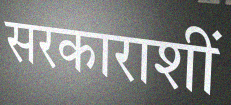
सरकाराशीं